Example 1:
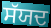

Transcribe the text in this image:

ਸੱਯਦ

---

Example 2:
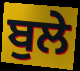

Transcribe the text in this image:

ਬੁਲੇ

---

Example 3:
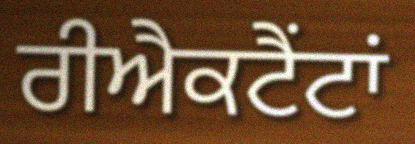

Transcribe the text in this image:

ਰੀਐਕਟੈਂਟਾਂ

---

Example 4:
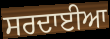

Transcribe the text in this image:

ਸਰਦਾਈਆ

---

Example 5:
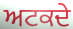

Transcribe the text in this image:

ਅਟਕਦੇ